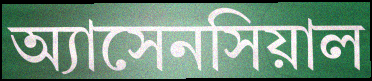
অ্যাসেনসিয়াল